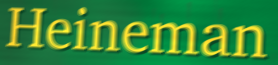
Heineman